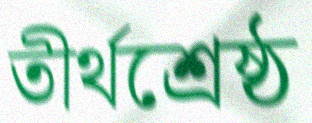
তীর্থশ্রেষ্ঠ